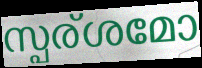
സ്പര്ശമോ